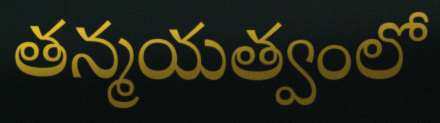
తన్మయత్వంలో